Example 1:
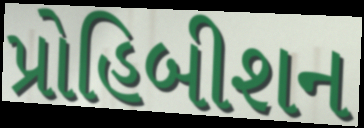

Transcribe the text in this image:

પ્રોહિબીશન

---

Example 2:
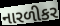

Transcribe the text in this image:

નારળીકર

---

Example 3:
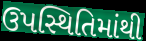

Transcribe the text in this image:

ઉપસ્થિતિમાંથી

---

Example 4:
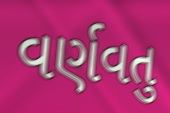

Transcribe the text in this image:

વર્ણવતુ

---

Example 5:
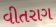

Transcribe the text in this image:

વીતરાગ